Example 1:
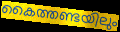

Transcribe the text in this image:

കൈത്തണ്ടയിലും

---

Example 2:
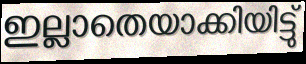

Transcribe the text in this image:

ഇല്ലാതെയാക്കിയിട്ടു്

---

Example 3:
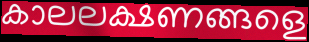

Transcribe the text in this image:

കാലലക്ഷണങ്ങളെ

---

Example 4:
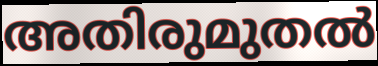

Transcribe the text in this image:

അതിരുമുതൽ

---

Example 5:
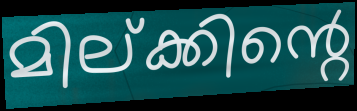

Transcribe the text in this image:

മില്ക്കിന്റെ